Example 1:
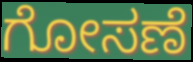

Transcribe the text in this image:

ಗೋಸಣೆ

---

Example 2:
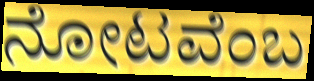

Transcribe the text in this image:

ನೋಟವೆಂಬ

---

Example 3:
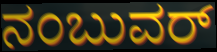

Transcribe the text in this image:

ನಂಬುವರ್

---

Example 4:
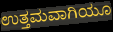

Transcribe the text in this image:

ಉತ್ತಮವಾಗಿಯೂ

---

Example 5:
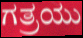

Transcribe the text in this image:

ಗತ್ರಯು